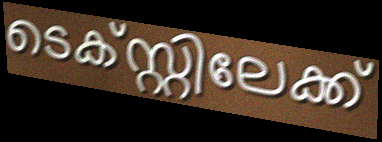
ടെക്സ്റ്റിലേക്ക്